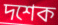
দশেক